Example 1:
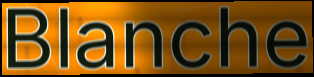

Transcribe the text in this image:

Blanche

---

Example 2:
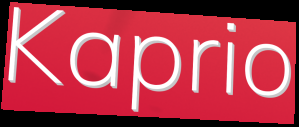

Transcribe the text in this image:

Kaprio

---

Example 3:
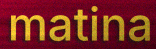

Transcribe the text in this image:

matina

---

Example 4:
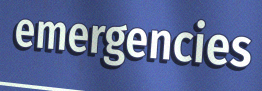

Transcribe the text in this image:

emergencies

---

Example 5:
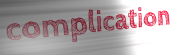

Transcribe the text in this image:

complication